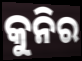
କୁନିର